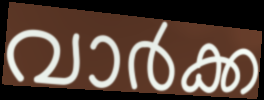
വാർക്ക